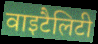
वाइटैलिटी